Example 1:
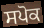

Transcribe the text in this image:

ਸਪੋਕ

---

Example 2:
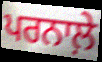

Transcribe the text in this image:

ਪਰਨਾਲ਼ੇ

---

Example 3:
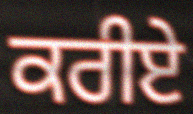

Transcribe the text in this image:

ਕਰੀਏੇ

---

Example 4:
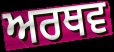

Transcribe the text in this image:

ਅਰਥਵ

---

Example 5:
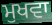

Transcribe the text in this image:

ਮੁਖਵਾ